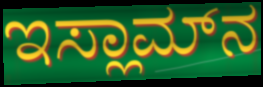
ಇಸ್ಲಾಮ್‌ನ